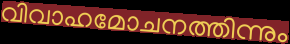
വിവാഹമോചനത്തിന്നും